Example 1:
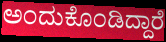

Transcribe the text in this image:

ಅಂದುಕೊಂಡಿದ್ದಾರೆ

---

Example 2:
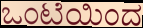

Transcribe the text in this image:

ಒಂಟೆಯಿಂದ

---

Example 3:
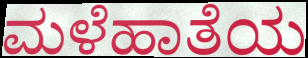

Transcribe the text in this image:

ಮಳೆಹಾತೆಯ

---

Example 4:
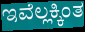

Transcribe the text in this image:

ಇವೆಲ್ಲಕ್ಕಿಂತ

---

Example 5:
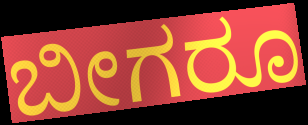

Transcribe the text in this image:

ಬೀಗರೂ